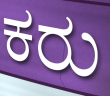
ಕರು